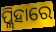
ପ୍ଲିହାରେ